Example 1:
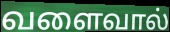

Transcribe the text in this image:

வளைவால்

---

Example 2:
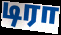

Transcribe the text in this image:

டிரா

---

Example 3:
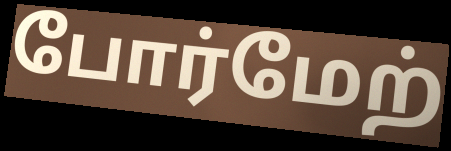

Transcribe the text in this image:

போர்மேற்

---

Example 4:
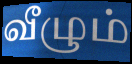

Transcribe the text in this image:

வீழும்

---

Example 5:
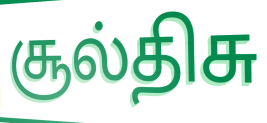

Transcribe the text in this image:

சூல்திசு